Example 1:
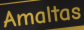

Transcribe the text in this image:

Amaltas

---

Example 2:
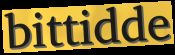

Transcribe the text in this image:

bittidde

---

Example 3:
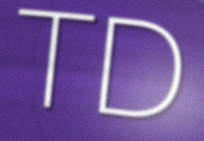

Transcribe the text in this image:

TD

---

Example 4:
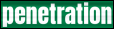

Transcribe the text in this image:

penetration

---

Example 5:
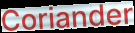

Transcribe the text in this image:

Coriander